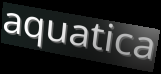
aquatica